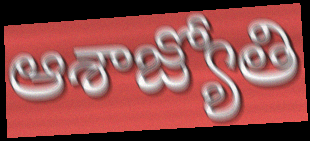
ఆశాజ్యోతి